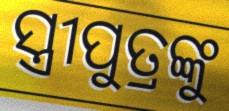
ସ୍ତ୍ରୀପୁତ୍ରଙ୍କୁ